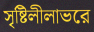
সৃষ্টিলীলাভরে